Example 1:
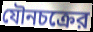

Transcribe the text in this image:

যৌনচক্রের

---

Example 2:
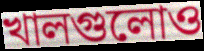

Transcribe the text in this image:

খালগুলোও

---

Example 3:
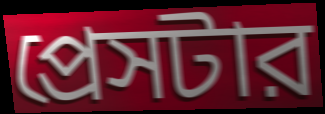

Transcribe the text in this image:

প্রেসটার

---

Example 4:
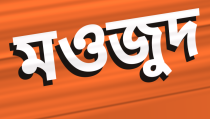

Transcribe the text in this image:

মওজুদ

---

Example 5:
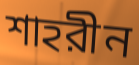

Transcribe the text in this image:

শাহরীন